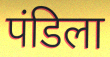
पंडिला